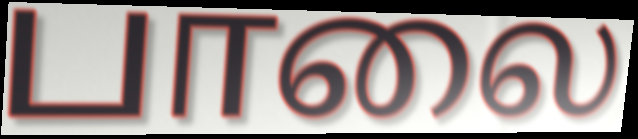
பாலை